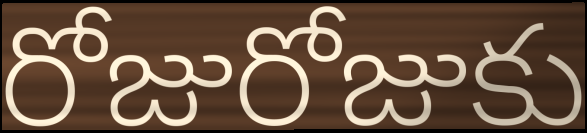
రోజురోజుకు